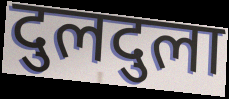
दुलदुला